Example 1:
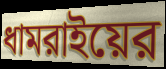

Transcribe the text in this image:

ধামরাইয়ের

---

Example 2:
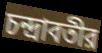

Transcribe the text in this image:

চন্দ্রাবতীর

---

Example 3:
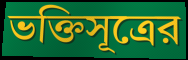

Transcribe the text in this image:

ভক্তিসূত্রের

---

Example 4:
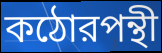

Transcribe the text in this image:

কঠোরপন্থী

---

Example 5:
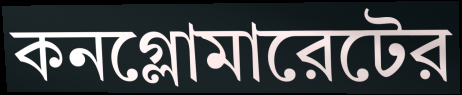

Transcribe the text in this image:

কনগ্লোমারেটের